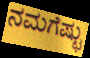
ನಮಗೆಷ್ಟು